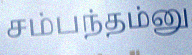
சம்பந்தம்னு